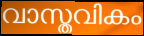
വാസ്തവികം